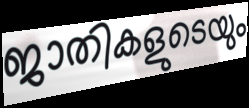
ജാതികളുടെയും